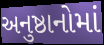
અનુષ્ઠાનોમાં